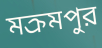
মক্রমপুর